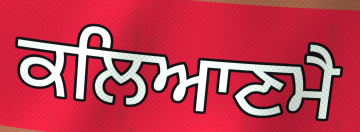
ਕਲਿਆਣਮੈ